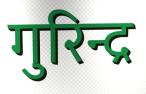
गुरिन्द्र